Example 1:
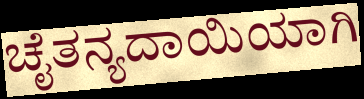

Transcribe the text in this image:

ಚೈತನ್ಯದಾಯಿಯಾಗಿ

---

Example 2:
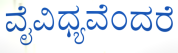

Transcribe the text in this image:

ವೈವಿಧ್ಯವೆಂದರೆ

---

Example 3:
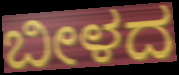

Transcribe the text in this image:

ಬೀಳದ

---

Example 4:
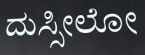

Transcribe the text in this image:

ದುಸ್ಸೀಲೋ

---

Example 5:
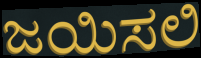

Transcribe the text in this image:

ಜಯಿಸಲಿ